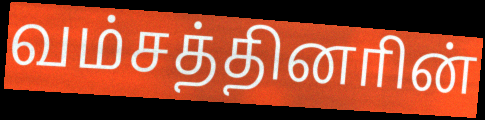
வம்சத்தினரின்